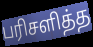
பரிசளித்த